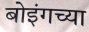
बोइंगच्या